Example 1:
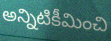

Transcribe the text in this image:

అన్నిటికీమించి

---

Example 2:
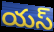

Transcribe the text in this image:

యస్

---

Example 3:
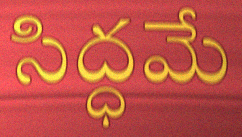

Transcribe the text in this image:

సిద్ధమే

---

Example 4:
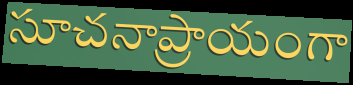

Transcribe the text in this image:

సూచనాప్రాయంగా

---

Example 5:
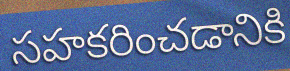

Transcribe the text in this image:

సహకరించడానికి